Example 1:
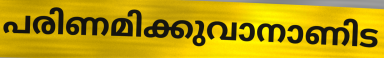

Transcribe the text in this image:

പരിണമിക്കുവാനാണിട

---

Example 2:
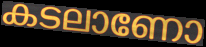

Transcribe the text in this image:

കടലാണോ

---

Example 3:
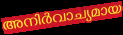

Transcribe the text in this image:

അനിർവാച്യമായ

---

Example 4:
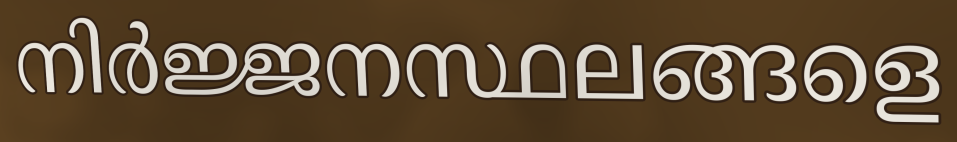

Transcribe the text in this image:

നിർജ്ജനസ്ഥലങ്ങളെ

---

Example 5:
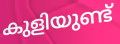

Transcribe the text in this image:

കുളിയുണ്ട്